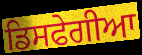
ਡਿਸਫੇਗੀਆ